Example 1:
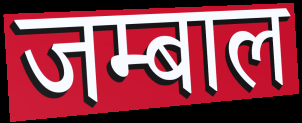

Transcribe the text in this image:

जम्बाल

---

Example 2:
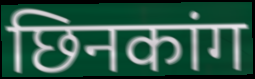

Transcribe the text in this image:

छिनकांग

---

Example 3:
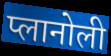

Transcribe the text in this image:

प्लानोली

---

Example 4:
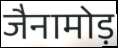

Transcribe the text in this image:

जैनामोड़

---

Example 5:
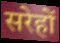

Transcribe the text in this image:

सरेहों